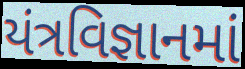
યંત્રવિજ્ઞાનમાં